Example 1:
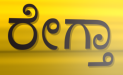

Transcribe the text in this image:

ರೇಗ್ತಾ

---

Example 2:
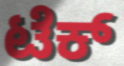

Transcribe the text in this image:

ಟೆಕ್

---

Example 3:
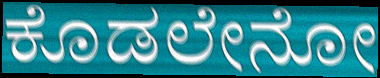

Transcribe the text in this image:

ಕೊಡಲೇನೋ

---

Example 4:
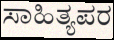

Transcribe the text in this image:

ಸಾಹಿತ್ಯಪರ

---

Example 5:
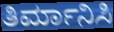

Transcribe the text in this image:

ತಿರ್ಮಾನಿಸಿ